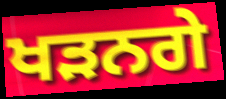
ਖੜਨਗੇ